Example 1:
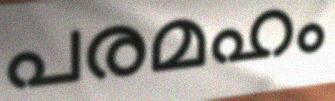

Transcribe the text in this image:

പരമഹം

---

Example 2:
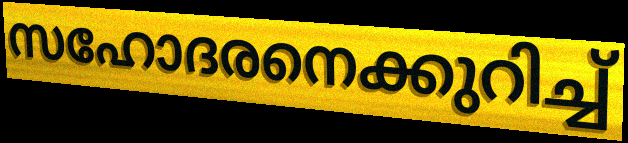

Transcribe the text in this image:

സഹോദരനെക്കുറിച്ച്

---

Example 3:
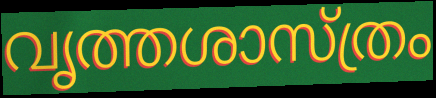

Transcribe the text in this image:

വൃത്തശാസ്ത്രം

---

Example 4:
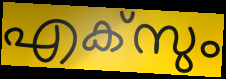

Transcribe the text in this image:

എക്‌സും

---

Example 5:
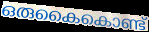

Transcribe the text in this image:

ഒരുകൈകൊണ്ട്